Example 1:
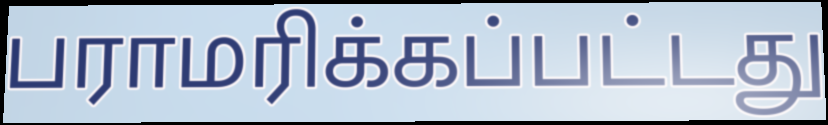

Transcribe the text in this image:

பராமரிக்கப்பட்டது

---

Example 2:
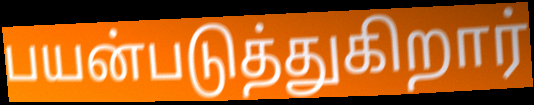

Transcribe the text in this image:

பயன்படுத்துகிறார்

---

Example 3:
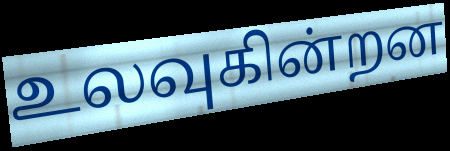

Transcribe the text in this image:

உலவுகின்றன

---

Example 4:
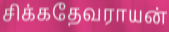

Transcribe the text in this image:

சிக்கதேவராயன்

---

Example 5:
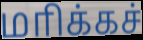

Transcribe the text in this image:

மரிக்கச்